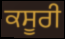
ਕਸੂਰੀ